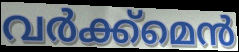
വർക്ക്മെൻ